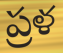
ప్రళ